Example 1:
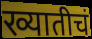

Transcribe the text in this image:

ख्यातीचं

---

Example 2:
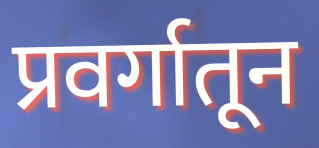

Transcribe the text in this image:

प्रवर्गातून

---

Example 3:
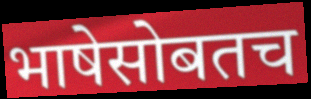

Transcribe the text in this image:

भाषेसोबतच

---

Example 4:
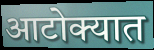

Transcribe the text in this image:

आटोक्‍यात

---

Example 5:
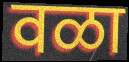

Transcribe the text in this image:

वळा